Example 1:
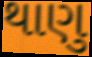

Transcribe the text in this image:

થાણુ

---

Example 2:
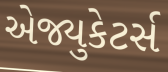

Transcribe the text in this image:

એજ્યુકેટર્સ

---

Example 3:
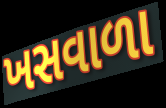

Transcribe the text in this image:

ખસવાળા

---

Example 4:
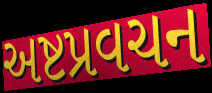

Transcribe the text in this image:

અષ્ટપ્રવચન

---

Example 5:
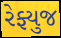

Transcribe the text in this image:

રેફ્યુજ